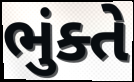
ભુંક્તે